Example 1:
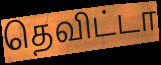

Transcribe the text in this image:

தெவிட்டா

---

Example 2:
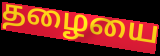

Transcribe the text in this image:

தழையை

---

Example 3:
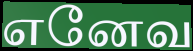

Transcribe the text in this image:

எனேவ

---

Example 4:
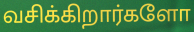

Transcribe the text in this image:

வசிக்கிறார்களோ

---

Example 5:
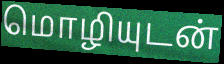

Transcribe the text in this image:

மொழியுடன்